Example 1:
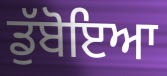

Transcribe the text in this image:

ਡੁੱਬੋਇਆ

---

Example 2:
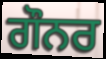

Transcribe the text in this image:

ਗੌਨਰ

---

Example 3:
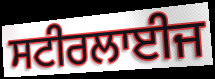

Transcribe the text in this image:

ਸਟੀਰਲਾਈਜ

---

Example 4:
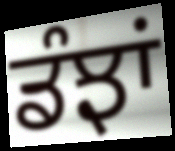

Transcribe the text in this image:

ਡੰਝਾਂ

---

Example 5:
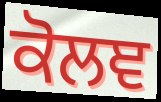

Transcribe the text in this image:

ਕੋਲਞ